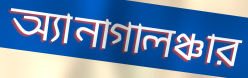
অ্যানাগালঞ্চার